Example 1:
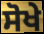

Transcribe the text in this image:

ਸੋਖੇ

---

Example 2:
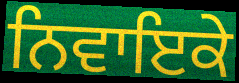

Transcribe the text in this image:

ਨਿਵਾਇਕੇ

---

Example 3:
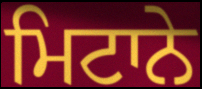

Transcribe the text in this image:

ਮਿਟਾਨੇ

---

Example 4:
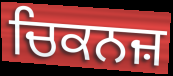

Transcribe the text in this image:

ਚਿਕਨਜ਼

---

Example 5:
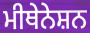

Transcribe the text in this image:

ਮੀਥੇਨੇਸ਼ਨ